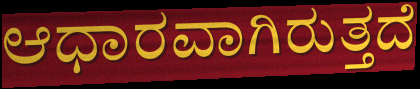
ಆಧಾರವಾಗಿರುತ್ತದೆ